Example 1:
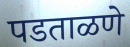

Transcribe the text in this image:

पडताळणे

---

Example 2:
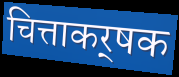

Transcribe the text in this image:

चित्ताकर्षक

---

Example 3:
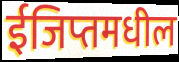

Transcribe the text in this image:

ईजिप्तमधील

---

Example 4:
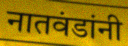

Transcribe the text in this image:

नातवंडांनी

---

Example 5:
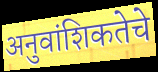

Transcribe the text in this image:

अनुवांशिकतेचे